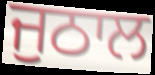
ਜੁਠਾਲ